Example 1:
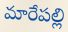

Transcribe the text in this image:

మారేపల్లి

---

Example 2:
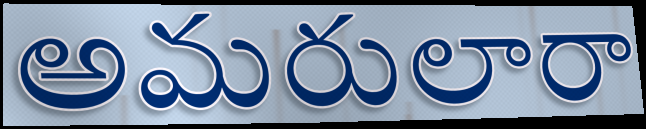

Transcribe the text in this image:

అమరులారా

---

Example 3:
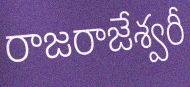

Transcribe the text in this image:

రాజరాజేశ్వరీ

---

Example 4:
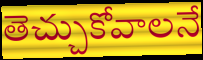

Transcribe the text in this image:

తెచ్చుకోవాలనే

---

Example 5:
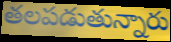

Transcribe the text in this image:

తలపడుతున్నారు